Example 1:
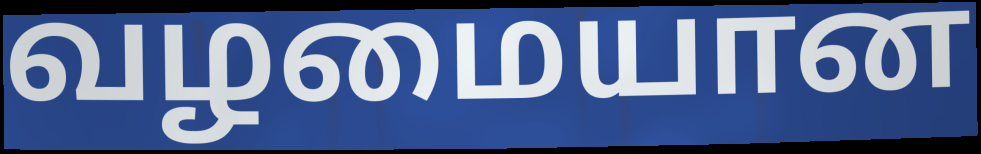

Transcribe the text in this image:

வழமையான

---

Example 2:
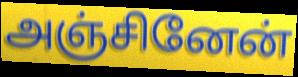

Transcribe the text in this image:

அஞ்சினேன்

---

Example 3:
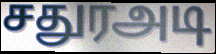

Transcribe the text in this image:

சதுரஅடி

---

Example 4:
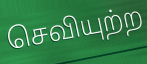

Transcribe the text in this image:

செவியுற்ற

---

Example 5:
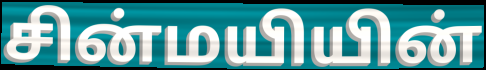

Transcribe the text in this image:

சின்மயியின்